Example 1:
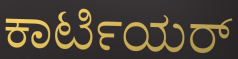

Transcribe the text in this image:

ಕಾರ್ಟಿಯರ್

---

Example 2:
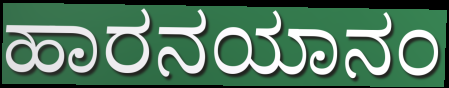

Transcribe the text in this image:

ಹಾರನಯಾನಂ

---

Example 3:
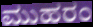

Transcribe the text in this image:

ಮುಹರಂ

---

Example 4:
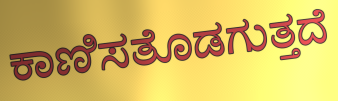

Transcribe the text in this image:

ಕಾಣಿಸತೊಡಗುತ್ತದೆ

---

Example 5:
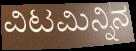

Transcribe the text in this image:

ವಿಟಮಿನ್ನಿನ